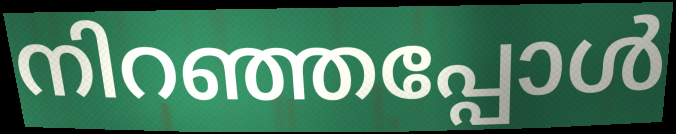
നിറഞ്ഞപ്പോൾ